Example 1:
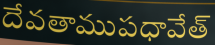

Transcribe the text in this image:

దేవతాముపధావేత్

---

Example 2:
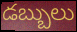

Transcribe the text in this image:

డబ్బులు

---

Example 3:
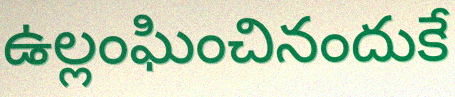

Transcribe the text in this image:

ఉల్లంఘించినందుకే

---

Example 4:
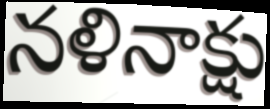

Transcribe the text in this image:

నళినాక్షు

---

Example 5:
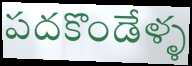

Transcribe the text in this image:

పదకొండేళ్ళ